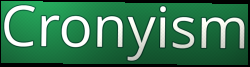
Cronyism